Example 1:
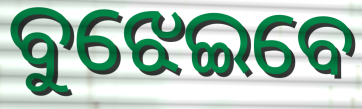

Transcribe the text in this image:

ବୁଝେଇବେ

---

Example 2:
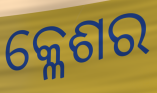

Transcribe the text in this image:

କ୍ଳେଶର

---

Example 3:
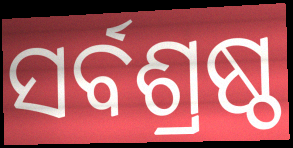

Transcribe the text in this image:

ସର୍ବଶ୍ରଷ୍ଠ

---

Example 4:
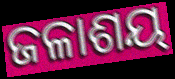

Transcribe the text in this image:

ଜଳାଶୟ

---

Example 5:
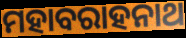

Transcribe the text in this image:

ମହାବରାହନାଥ